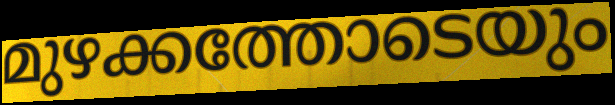
മുഴക്കത്തോടെയും